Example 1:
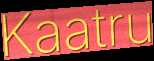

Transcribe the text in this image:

Kaatru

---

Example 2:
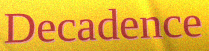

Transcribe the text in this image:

Decadence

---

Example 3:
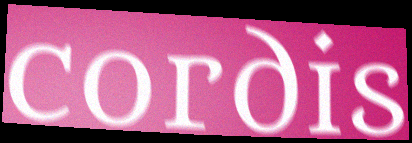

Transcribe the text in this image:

cordis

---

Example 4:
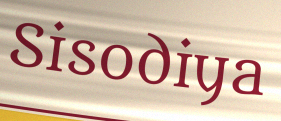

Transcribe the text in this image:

Sisodiya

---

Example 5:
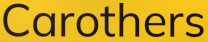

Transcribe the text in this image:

Carothers